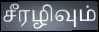
சீரழிவும்